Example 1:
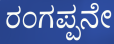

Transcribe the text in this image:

ರಂಗಪ್ಪನೇ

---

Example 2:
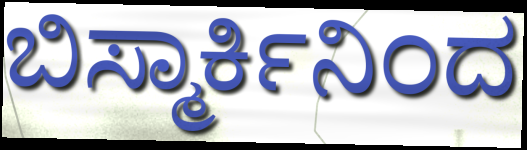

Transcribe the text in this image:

ಬಿಸ್ಮಾರ್ಕಿನಿಂದ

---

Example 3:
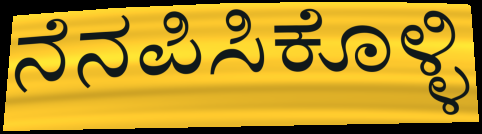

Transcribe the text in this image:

ನೆನಪಿಸಿಕೊಳ್ಳಿ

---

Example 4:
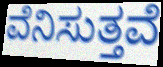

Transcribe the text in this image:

ವೆನಿಸುತ್ತವೆ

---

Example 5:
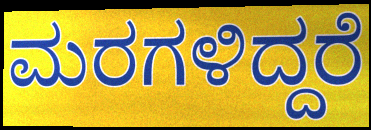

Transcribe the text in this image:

ಮರಗಳಿದ್ದರೆ